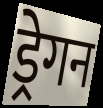
ड्रेगन